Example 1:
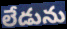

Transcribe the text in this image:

లేడును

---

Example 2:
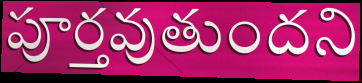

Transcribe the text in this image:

పూర్తవుతుందని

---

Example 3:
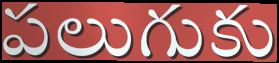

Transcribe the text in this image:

పలుగుకు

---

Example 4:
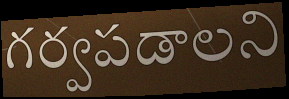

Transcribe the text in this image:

గర్వపడాలని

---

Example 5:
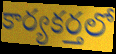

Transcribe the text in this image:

కార్యకర్తలో